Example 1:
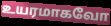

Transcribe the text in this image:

உயரமாகவோ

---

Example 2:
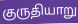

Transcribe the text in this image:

குருதியாறு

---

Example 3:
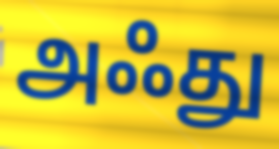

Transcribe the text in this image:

அஃது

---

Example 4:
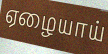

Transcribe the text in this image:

ஏழையாய்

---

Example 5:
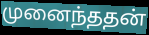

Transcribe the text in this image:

முனைந்ததன்